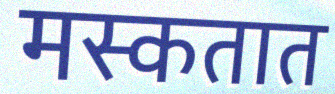
मस्कतात